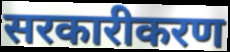
सरकारीकरण